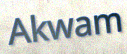
Akwam